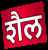
शैल